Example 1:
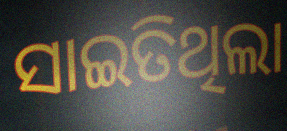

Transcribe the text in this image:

ସାଇତିଥିଲା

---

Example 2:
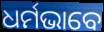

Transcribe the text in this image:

ଧର୍ମଭାବେ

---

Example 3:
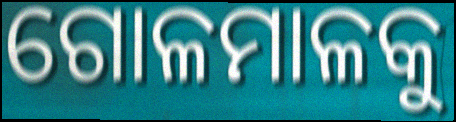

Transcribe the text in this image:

ଗୋଳମାଳକୁ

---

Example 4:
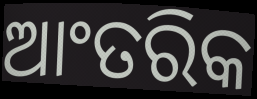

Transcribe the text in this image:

ଆଂତରିକ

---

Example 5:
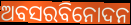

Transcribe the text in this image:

ଅବସରବିନୋଦନ